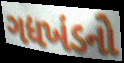
ગદ્યખંડનો